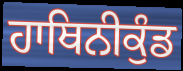
ਹਾਥਿਨੀਕੁੰਡ